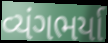
વ્યંગભર્યા